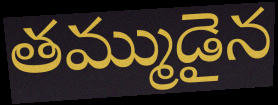
తమ్ముడైన